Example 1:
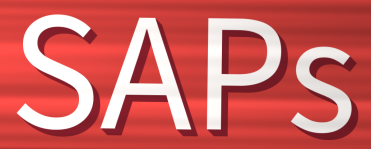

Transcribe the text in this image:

SAPs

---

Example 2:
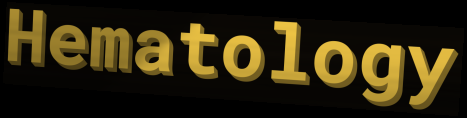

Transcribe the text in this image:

Hematology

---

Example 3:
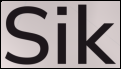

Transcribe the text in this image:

Sik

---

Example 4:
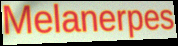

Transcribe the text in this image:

Melanerpes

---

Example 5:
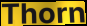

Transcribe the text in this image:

Thorn